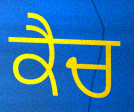
ਕੈਚ